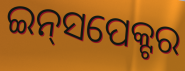
ଇନ୍‌ସପେକ୍ଟର